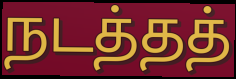
நடத்தத்